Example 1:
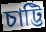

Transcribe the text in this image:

চাট্টি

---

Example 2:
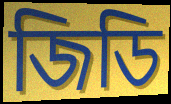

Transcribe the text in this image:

জিডি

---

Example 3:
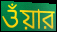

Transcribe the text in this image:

ওঁয়ার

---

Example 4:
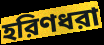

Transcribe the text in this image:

হরিণধরা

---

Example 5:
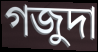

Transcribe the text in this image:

গজুদা